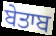
ਬੇਤਾਬ